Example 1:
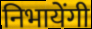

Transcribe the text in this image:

निभायेंगी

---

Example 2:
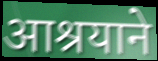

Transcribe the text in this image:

आश्रयाने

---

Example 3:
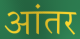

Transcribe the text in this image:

आंतर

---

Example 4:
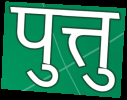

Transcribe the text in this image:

पुत्तु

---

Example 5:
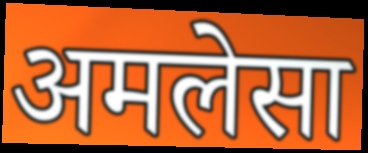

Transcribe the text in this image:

अमलेसा